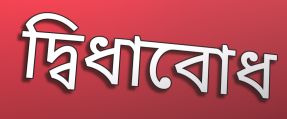
দ্বিধাবোধ